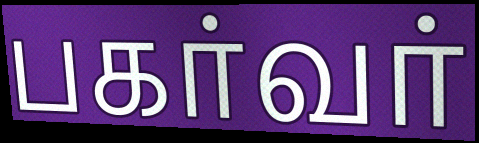
பகர்வர்